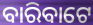
ବାରିବାଟେ